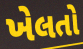
ખેલતો